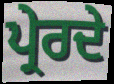
ਪ੍ਰੇਰਦੇ